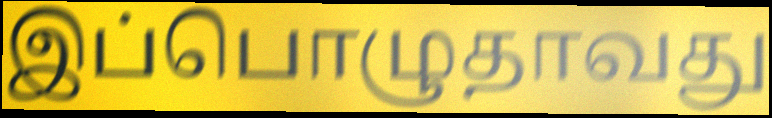
இப்பொழுதாவது